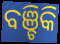
ବଞ୍ଚିକି